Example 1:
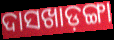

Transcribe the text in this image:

ଦାସଖାଡ଼ଙ୍ଗା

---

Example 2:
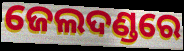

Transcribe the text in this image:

ଜେଲଦଣ୍ଡରେ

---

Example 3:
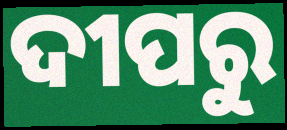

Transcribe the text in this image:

ଦୀପରୁ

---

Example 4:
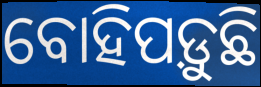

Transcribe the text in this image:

ବୋହିପଡ଼ୁଛି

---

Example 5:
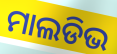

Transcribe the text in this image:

ମାଲଡିଭ